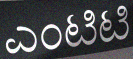
ಎಂಟಿಟಿ